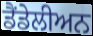
ਡੈਂਡੇਲੀਅਨ